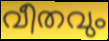
വീതവും